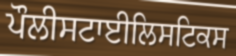
ਪੌਲੀਸਟਾਈਲਿਸਟਿਕਸ